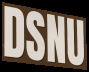
DSNU